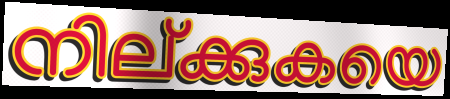
നില്ക്കുകയെ